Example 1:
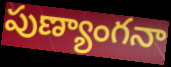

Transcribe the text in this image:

పుణ్యాంగనా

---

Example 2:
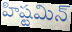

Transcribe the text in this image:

హిష్టమిన్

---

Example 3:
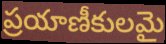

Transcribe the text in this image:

ప్రయాణీకులమై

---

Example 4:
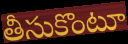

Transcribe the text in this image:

తీసుకొంటూ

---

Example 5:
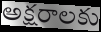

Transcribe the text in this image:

అక్షరాలకు